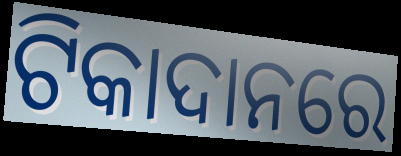
ଟିକାଦାନରେ